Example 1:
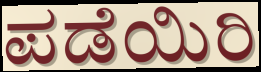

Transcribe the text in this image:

ಪಡೆಯಿರಿ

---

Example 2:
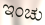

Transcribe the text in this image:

ಇಂಚು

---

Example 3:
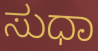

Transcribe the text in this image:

ಸುಧಾ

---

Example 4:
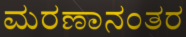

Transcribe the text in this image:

ಮರಣಾನಂತರ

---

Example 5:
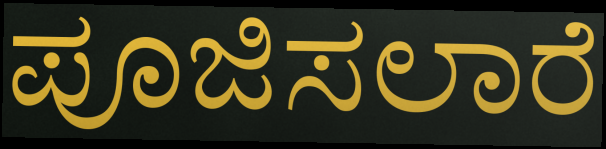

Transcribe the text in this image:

ಪೂಜಿಸಲಾರೆ